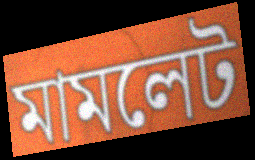
মামলেট